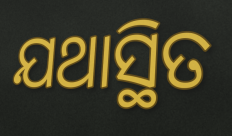
ଯଥାସ୍ଥିତ